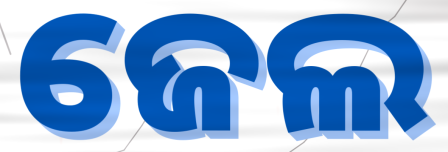
ଜେଲ